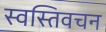
स्वस्तिवचन